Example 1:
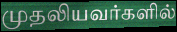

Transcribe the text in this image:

முதலியவர்களில்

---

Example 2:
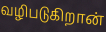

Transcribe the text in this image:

வழிபடுகிறான்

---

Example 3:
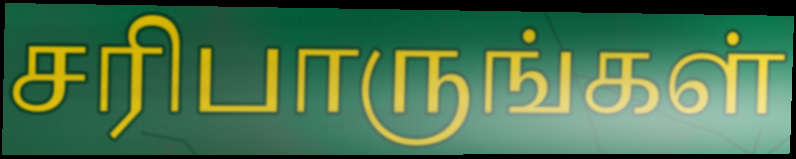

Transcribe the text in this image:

சரிபாருங்கள்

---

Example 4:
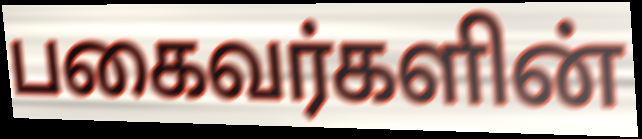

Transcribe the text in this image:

பகைவர்களின்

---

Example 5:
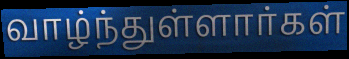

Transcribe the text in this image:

வாழ்ந்துள்ளார்கள்